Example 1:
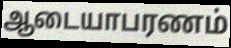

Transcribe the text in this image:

ஆடையாபரணம்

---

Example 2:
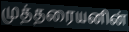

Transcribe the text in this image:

முத்தரையனின்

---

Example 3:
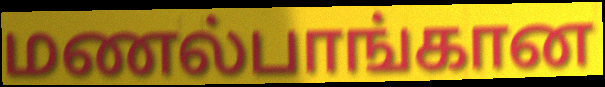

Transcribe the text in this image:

மணல்பாங்கான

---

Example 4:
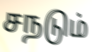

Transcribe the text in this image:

சநடும்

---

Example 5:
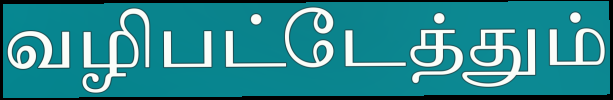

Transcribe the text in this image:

வழிபட்டேத்தும்